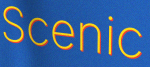
Scenic